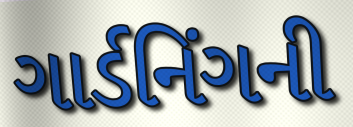
ગાર્ડનિંગની